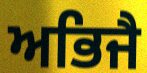
ਅਭਿਜੈ